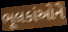
ભૂલકાંઓને